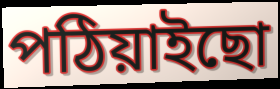
পঠিয়াইছো